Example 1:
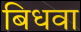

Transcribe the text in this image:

बिधवा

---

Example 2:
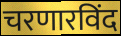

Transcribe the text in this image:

चरणारविंद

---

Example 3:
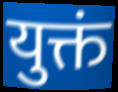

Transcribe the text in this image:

युक्तं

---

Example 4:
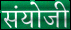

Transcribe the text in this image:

संयोजी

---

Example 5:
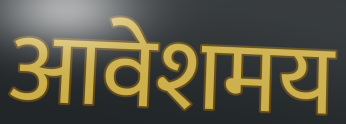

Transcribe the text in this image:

आवेशमय